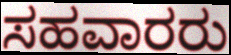
ಸಹವಾರರು